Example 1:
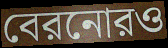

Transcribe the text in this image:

বেরনোরও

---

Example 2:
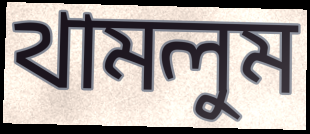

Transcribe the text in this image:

থামলুম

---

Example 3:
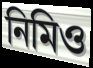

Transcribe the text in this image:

নিমিও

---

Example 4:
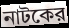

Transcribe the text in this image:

নাটকের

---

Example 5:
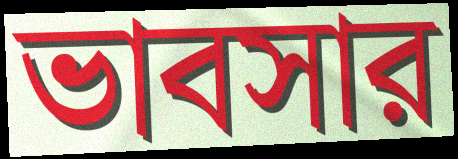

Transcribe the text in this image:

ভাবসার